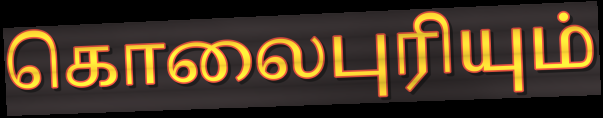
கொலைபுரியும்